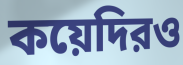
কয়েদিরও